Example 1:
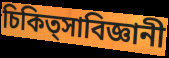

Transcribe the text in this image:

চিকিত্সাবিজ্ঞানী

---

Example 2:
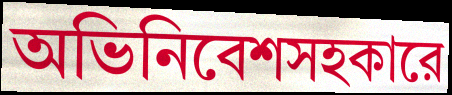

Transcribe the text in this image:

অভিনিবেশসহকারে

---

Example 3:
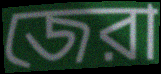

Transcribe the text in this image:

জেরা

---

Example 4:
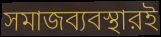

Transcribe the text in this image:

সমাজব্যবস্থারই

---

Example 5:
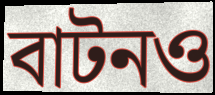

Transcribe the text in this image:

বাটনও